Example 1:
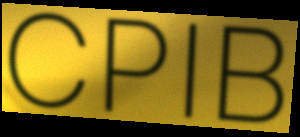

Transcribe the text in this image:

CPIB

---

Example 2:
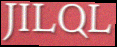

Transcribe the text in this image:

JILQL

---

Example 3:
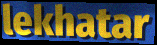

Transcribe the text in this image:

lekhatar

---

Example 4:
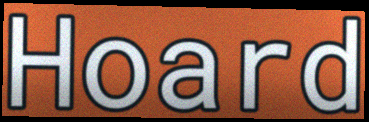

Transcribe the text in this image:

Hoard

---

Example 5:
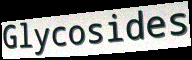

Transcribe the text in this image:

Glycosides